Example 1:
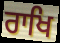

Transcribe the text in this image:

ਰਾਖਿ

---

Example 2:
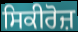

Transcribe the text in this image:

ਸਿਕੀਰੋਜ਼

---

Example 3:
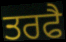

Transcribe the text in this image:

ਤਰਫੈ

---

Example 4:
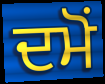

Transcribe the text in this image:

ਦਮੋਂ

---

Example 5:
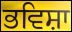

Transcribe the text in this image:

ਭਵਿਸ਼ਾ